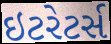
ઇટરેટર્સ